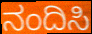
ನಂದಿಸಿ